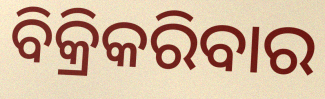
ବିକ୍ରିକରିବାର